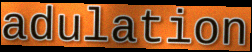
adulation